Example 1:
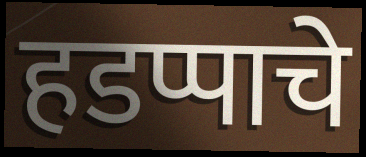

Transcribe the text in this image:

हडप्पाचे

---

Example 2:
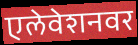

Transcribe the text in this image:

एलेवेशनवर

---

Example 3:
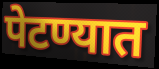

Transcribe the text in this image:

पेटण्यात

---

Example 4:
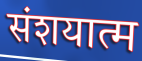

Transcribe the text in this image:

संशयात्म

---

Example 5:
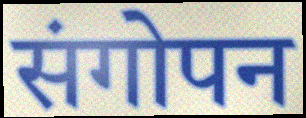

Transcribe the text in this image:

संगोपन